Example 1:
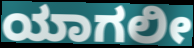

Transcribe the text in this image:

ಯಾಗಲೀ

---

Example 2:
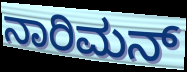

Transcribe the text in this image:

ನಾರಿಮನ್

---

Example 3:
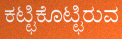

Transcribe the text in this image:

ಕಟ್ಟಿಕೊಟ್ಟಿರುವ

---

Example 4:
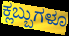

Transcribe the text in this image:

ಕ್ಲಬ್ಬುಗಳೂ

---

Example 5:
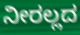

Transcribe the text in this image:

ನೀರಲ್ಲದ